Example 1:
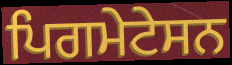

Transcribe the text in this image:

ਪਿਗਮੇਟੇਸਨ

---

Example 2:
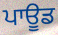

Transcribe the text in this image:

ਪਾਊਡ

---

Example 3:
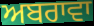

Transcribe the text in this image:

ਅਬਰਾਵਾ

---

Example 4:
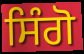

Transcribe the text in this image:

ਸਿੰਗੋ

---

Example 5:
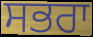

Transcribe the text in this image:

ਸਭਰਾ